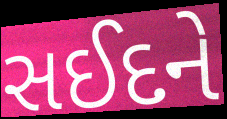
સઈદને